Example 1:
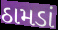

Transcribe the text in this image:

ઠામડાં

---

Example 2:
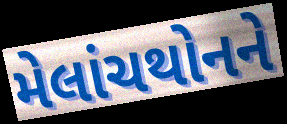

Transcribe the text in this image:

મેલાંચથોનને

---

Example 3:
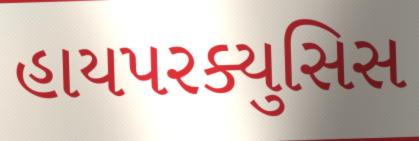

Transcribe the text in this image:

હાયપરક્યુસિસ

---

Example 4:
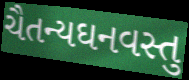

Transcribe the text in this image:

ચૈતન્યઘનવસ્તુ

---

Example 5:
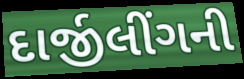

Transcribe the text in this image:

દાર્જીલીંગની